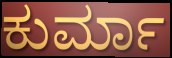
ಕುರ್ಮಾ